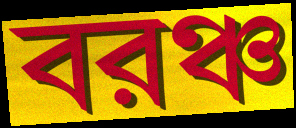
বরঞ্চ